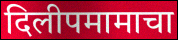
दिलीपमामाचा